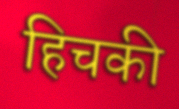
हिचकी